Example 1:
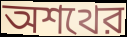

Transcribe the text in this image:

অশথের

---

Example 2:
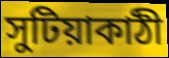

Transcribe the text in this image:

সুটিয়াকাঠী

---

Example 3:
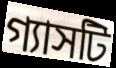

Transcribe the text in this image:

গ্যাসটি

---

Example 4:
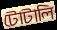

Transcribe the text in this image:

টোটালি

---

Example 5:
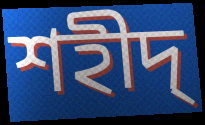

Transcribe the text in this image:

শহীদ্